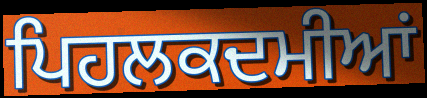
ਪਿਹਲਕਦਮੀਆਂ